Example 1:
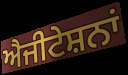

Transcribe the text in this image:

ਐਜੀਟੇਸ਼ਨਾਂ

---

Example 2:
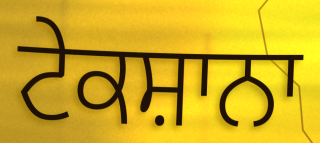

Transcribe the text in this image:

ਟੇਕਸ਼ਾਨਾ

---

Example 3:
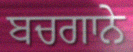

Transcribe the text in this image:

ਬਚਗਾਨੇ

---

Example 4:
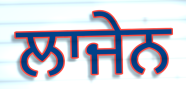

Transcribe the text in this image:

ਲਾਜੇਨ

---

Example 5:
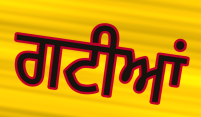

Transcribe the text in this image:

ਗਟੀਆਂ